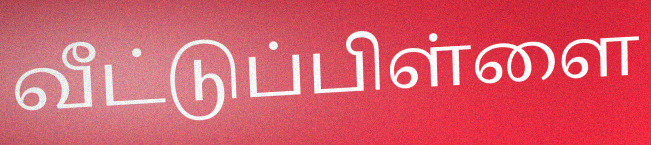
வீட்டுப்பிள்ளை